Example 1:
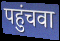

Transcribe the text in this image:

पहुंचवा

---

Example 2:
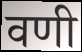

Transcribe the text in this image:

वणी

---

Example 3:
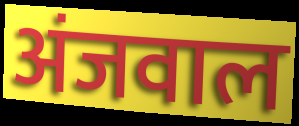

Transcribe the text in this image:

अंजवाल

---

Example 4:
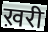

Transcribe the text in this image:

ख़री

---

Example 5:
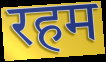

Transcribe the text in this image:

रहम